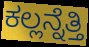
ಕಲ್ಲನ್ನೆತ್ತಿ